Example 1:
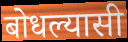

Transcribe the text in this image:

बोधल्यासी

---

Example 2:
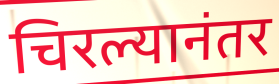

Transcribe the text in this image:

चिरल्यानंतर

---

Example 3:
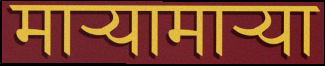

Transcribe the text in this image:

माऱ्यामाऱ्या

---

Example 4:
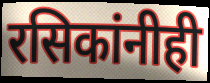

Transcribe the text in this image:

रसिकांनीही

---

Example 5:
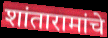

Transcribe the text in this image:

शांतारामांचे